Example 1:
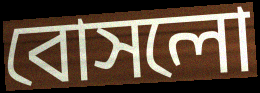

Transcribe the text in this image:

বোসলো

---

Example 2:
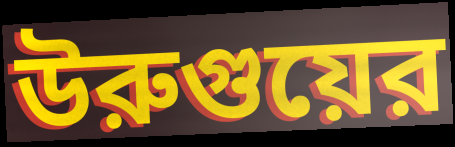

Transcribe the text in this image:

উরুগুয়ের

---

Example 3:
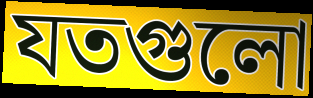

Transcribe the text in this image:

যতগুলো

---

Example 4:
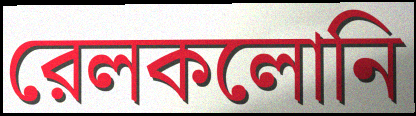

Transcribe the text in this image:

রেলকলোনি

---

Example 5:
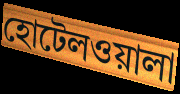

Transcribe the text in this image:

হোটেলওয়ালা